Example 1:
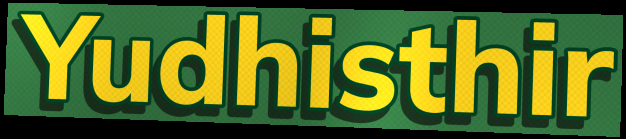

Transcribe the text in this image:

Yudhisthir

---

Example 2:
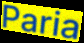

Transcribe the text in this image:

Paria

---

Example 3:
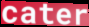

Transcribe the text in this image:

cater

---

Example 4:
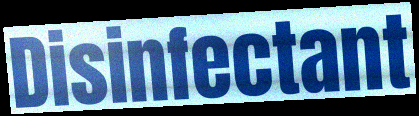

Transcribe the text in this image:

Disinfectant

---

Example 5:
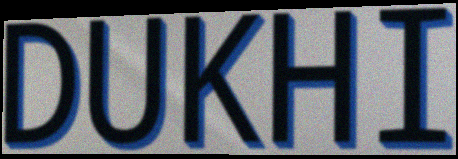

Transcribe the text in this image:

DUKHI